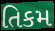
તિકમ